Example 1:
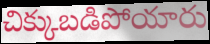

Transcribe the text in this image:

చిక్కుబడిపోయారు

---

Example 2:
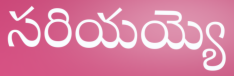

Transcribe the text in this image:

సరియయ్యె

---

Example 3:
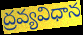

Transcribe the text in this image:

ద్రవ్యవిధాన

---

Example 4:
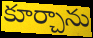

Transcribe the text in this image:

కూర్చాను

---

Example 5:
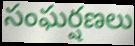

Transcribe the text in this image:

సంఘర్షణలు